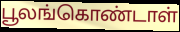
பூலங்கொண்டாள்